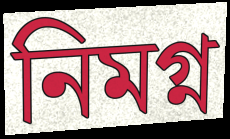
নিমগ্ন